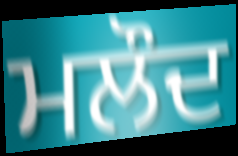
ਮਲੌਦ